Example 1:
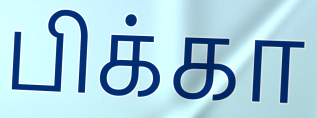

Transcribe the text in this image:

பிக்கா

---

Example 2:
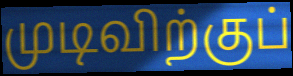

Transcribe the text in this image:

முடிவிற்குப்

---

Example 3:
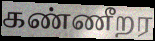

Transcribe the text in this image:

கண்ணீறர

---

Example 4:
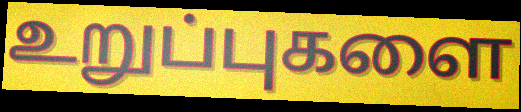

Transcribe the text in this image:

உறுப்புகளை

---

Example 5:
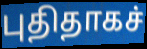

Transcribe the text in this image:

புதிதாகச்